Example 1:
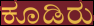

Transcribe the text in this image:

ಕೂಡಿರು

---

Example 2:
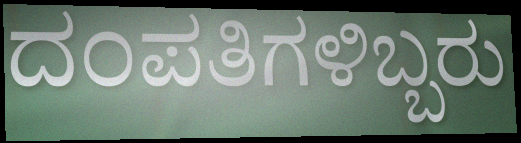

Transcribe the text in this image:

ದಂಪತಿಗಳಿಬ್ಬರು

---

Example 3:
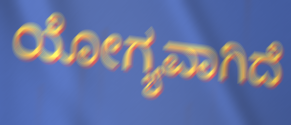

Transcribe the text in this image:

ಯೋಗ್ಯವಾಗಿದೆ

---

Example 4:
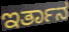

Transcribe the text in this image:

ಇರ್ತಾನ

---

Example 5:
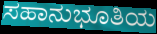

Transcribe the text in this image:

ಸಹಾನುಭೂತಿಯ